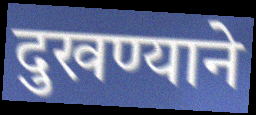
दुखण्याने